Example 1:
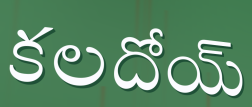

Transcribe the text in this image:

కలదోయ్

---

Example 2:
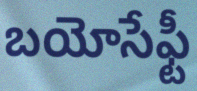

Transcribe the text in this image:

బయోసేఫ్టీ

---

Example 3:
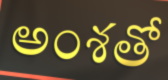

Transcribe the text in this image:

అంశతో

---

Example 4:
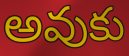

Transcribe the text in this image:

అవుకు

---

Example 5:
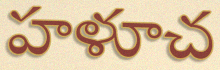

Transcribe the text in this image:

హళూచ